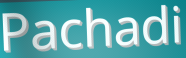
Pachadi